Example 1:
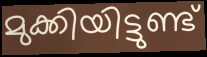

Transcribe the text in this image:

മുക്കിയിട്ടുണ്ട്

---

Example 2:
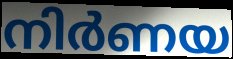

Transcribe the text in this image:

നിർണയ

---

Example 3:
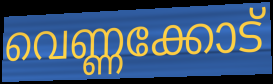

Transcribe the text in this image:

വെണ്ണക്കോട്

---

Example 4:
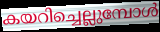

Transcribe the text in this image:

കയറിച്ചെല്ലുമ്പോൾ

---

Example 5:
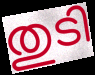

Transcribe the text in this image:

തുടി